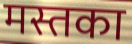
मस्तका